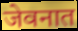
जेवनात